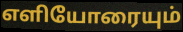
எளியோரையும்